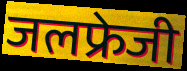
जलफ्रेजी